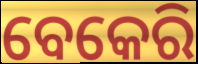
ବେକେରି